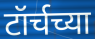
टॉर्चच्या